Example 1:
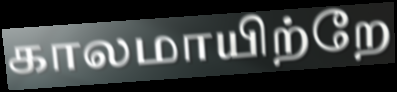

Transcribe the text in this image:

காலமாயிற்றே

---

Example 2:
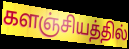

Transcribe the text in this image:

களஞ்சியத்தில்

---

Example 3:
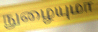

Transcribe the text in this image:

நுழையுமா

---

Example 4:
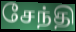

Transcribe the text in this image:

சேந்தி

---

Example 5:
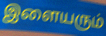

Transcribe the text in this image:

இளையரும்